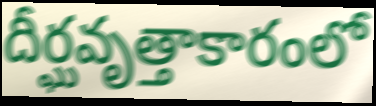
దీర్ఘవృత్తాకారంలో